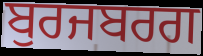
ਬੁਰਜਬਰਗ